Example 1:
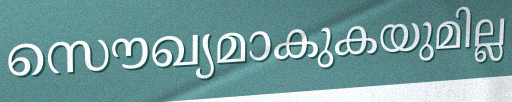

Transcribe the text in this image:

സൌഖ്യമാകുകയുമില്ല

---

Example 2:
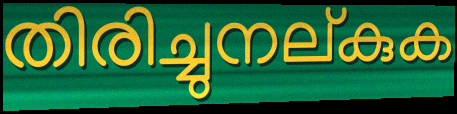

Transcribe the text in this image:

തിരിച്ചുനല്കുക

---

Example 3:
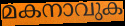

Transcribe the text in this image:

മകനാവുക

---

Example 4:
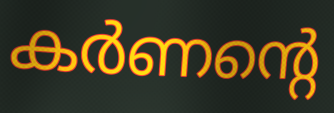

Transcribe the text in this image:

കർണന്റെ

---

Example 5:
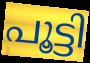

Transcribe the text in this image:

പൂട്ടി